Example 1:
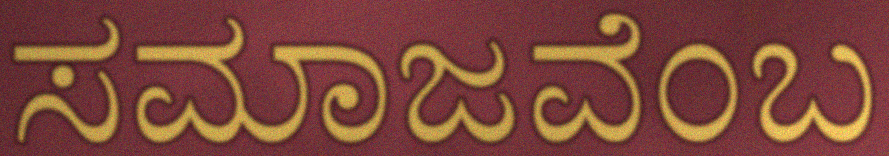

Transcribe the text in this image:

ಸಮಾಜವೆಂಬ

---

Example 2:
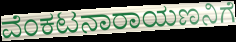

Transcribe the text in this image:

ವೆಂಕಟನಾರಾಯಣನಿಗೆ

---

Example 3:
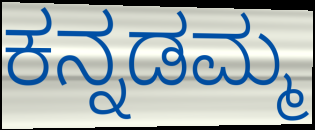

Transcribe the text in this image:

ಕನ್ನಡಮ್ಮ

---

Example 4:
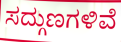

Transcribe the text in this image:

ಸದ್ಗುಣಗಳಿವೆ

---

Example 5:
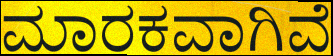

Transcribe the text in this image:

ಮಾರಕವಾಗಿವೆ